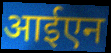
आईएन